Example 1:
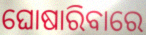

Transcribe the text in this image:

ଘୋଷାରିବାରେ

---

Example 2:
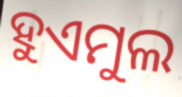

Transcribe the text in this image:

ହୁଏମୁଲ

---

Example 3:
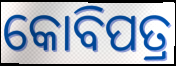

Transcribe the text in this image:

କୋବିପତ୍ର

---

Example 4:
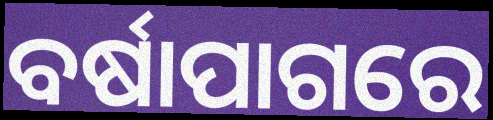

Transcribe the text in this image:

ବର୍ଷାପାଗରେ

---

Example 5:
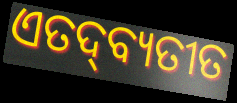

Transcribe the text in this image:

ଏତଦ୍‌ବ୍ୟତୀତ